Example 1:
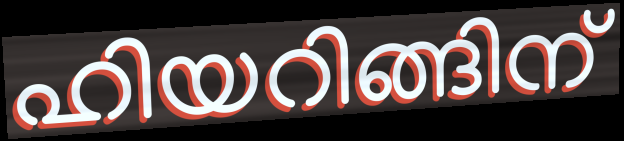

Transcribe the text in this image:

ഹിയറിങ്ങിന്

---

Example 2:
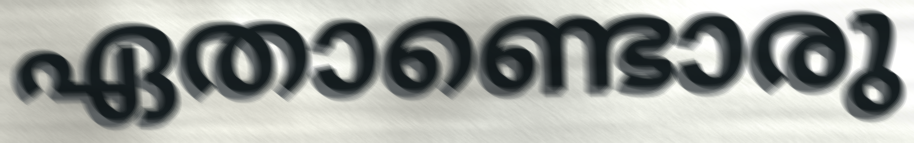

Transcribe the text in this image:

ഏതാണ്ടൊരു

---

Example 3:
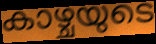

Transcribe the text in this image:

കാഴ്ചയുടെ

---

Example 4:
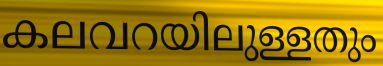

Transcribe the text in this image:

കലവറയിലുള്ളതും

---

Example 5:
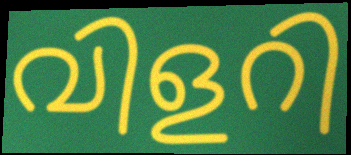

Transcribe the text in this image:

വിളറി